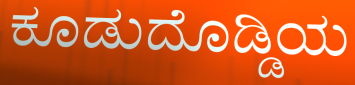
ಕೂಡುದೊಡ್ಡಿಯ